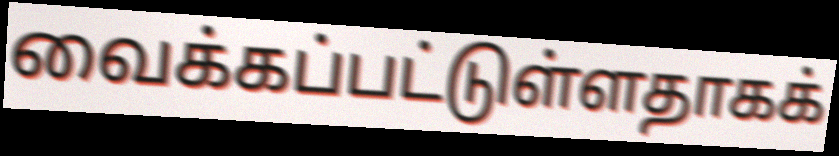
வைக்கப்பட்டுள்ளதாகக்